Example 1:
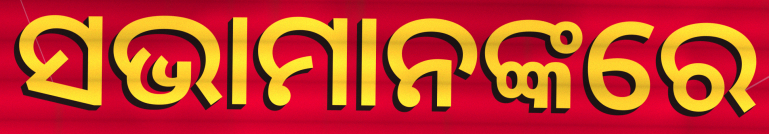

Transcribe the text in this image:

ସଭାମାନଙ୍କରେ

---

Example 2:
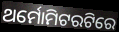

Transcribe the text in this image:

ଥର୍ମୋମିଟରଟିରେ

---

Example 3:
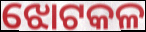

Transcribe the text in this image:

ଝୋଟକଳ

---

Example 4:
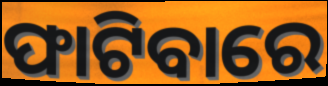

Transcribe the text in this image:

ଫାଟିବାରେ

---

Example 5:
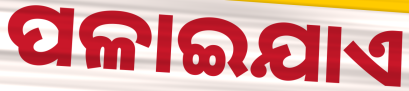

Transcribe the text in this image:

ପଳାଇଯାଏ